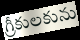
గ్రీకులకును